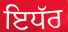
ਇਧੱਰ